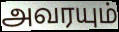
அவரயும்